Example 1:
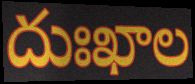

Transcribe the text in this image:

దుఃఖాల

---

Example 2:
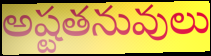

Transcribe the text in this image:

అష్టతనువులు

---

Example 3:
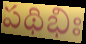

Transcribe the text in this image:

పథిభిః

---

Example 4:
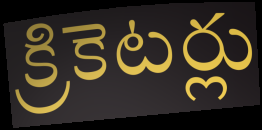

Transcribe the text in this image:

క్రికెటర్లు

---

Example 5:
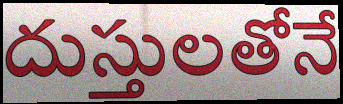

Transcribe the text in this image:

దుస్తులతోనే